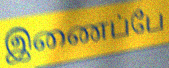
இணைப்பே